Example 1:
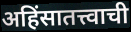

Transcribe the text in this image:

अहिंसातत्त्वाची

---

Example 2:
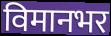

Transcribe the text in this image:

विमानभर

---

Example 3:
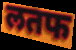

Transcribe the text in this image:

लतफ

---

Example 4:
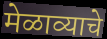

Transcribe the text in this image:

मेळाव्याचे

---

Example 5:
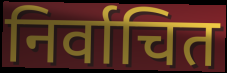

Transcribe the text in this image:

निर्वाचित